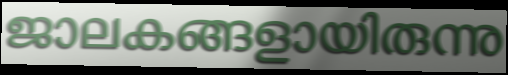
ജാലകങ്ങളായിരുന്നു